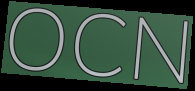
OCN